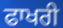
ਫਾਖਰੀ